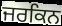
ਜਰਕਿਨ